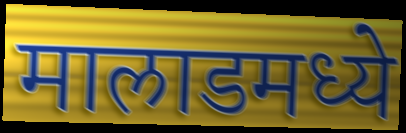
मालाडमध्ये